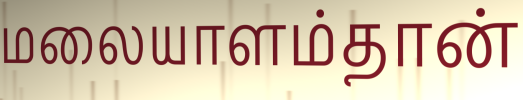
மலையாளம்தான்